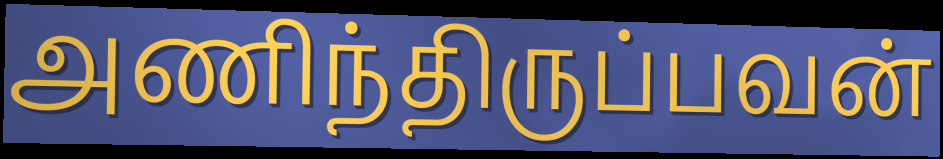
அணிந்திருப்பவன்